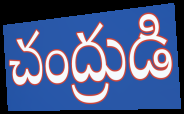
చంద్రుడి